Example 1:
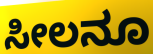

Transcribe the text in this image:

ಸೀಲನೂ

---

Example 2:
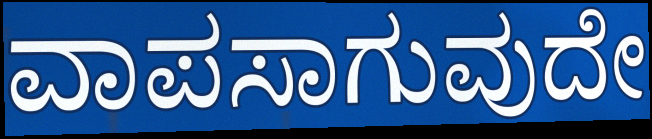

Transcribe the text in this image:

ವಾಪಸಾಗುವುದೇ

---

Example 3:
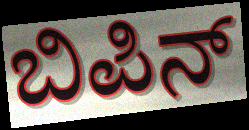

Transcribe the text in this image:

ಬಿಪಿನ್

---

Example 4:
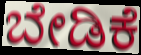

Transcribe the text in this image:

ಬೇಡಿಕೆ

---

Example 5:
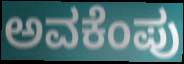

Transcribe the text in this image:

ಅವಕೆಂಪು